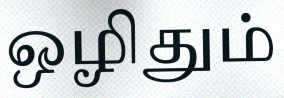
ஒழிதும்